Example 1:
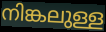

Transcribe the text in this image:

നിങ്കലുള്ള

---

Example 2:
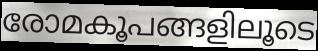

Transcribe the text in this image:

രോമകൂപങ്ങളിലൂടെ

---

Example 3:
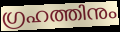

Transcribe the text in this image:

ഗ്രഹത്തിനും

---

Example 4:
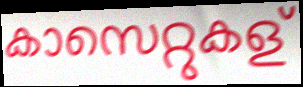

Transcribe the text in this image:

കാസെറ്റുകള്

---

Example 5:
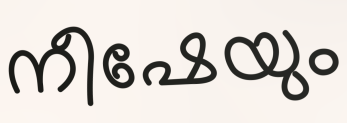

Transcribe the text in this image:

നീഷേയും